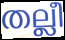
തല്ലീ